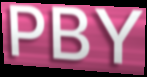
PBY